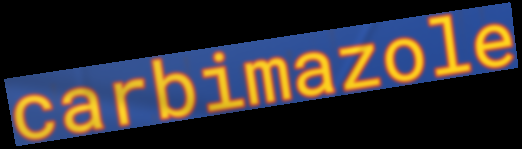
carbimazole